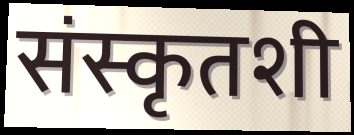
संस्कृतशी